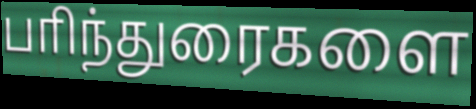
பரிந்துரைகளை